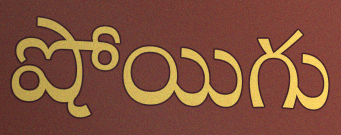
షోయిగు